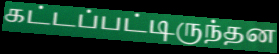
கட்டப்பட்டிருந்தன